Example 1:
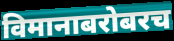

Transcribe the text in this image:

विमानाबरोबरच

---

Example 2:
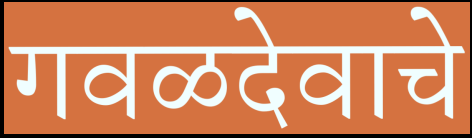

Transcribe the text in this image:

गवळदेवाचे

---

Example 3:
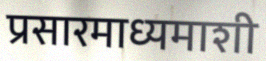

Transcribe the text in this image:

प्रसारमाध्यमाशी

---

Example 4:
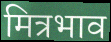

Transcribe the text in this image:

मित्रभाव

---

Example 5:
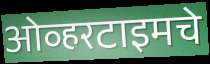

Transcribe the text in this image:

ओव्हरटाइमचे